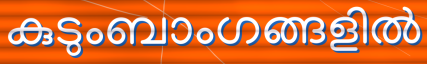
കുടുംബാംഗങ്ങളിൽ